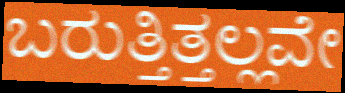
ಬರುತ್ತಿತ್ತಲ್ಲವೇ